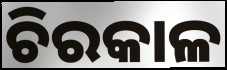
ଚିରକାଳ